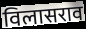
विलासराव